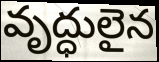
వృద్ధులైన